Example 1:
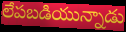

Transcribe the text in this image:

లేపబడియున్నాడు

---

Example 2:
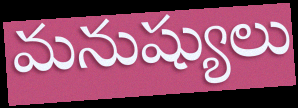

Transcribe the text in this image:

మనుష్యులు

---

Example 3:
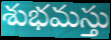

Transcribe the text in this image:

శుభమస్తు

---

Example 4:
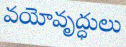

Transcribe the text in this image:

వయోవృద్ధులు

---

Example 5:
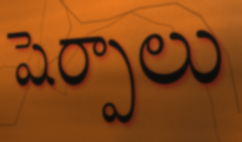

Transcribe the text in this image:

షెర్పాలు